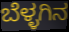
ಬೆಳ್ಳಗಿನ